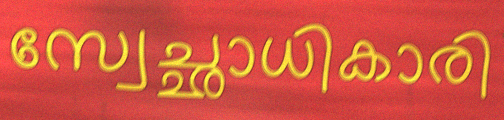
സ്വേച്ഛാധികാരി